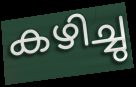
കഴിച്ചു